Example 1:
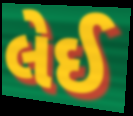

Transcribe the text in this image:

લેઈ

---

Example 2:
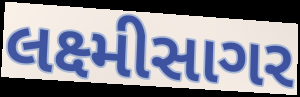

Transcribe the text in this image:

લક્ષ્મીસાગર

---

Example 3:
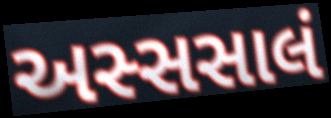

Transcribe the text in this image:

અસ્સસાલં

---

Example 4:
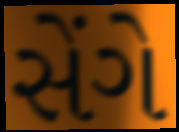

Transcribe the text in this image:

સેંગે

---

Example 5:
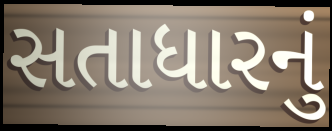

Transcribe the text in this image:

સતાધારનું